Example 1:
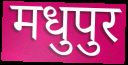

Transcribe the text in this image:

मधुपुर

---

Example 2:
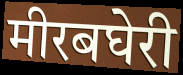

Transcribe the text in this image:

मीरबघेरी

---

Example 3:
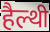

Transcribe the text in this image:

हैल्थी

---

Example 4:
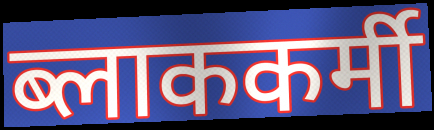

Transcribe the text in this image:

ब्लाककर्मी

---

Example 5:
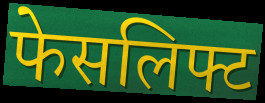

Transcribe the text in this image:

फेसलिफ्ट